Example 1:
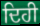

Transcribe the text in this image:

ਦਿਹੀ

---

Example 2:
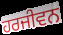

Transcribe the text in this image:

ਹਰਜੀਵਨ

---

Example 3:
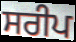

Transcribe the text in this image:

ਸਰੀਪ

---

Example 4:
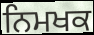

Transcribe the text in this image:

ਨਿਮਖਕ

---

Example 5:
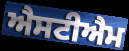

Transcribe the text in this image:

ਐਸਟੀਐਮ